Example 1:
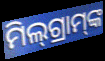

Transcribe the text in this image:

ମିଲ୍‌ଗ୍ରାମ୍‌ଙ୍କ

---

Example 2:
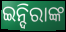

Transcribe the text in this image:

ଇନ୍ଦିରାଙ୍କ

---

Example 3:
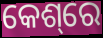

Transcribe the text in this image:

କେଶ୍‌ରେ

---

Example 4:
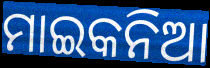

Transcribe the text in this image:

ମାଇକନିଆ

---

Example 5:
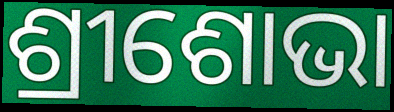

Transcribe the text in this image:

ଶ୍ରୀଶୋଭା